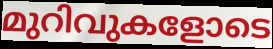
മുറിവുകളോടെ